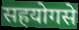
सहयोगसे